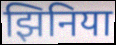
झिनिया